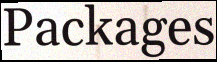
Packages